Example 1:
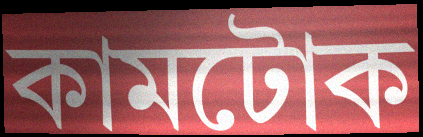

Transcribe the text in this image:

কামটোক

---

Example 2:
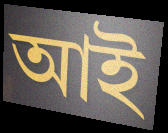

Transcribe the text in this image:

আই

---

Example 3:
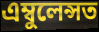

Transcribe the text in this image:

এম্বুলেন্সত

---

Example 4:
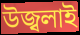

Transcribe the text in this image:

উজ্বলাই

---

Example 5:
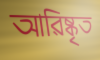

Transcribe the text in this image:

আৱিষ্কৃত